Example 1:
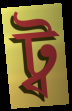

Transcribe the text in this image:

ট্ব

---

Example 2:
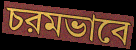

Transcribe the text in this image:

চরমভাবে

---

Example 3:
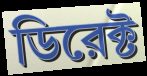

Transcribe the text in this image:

ডিরেক্ট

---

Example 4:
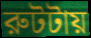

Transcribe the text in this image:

রুটটায়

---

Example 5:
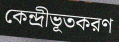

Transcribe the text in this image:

কেন্দ্রীভূতকরণ